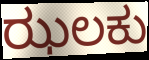
ಝಲಕು